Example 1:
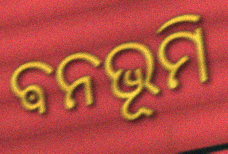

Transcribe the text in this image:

ଵନଭୂମି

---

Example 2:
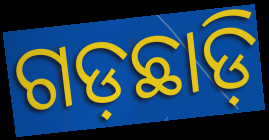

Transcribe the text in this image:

ଗଡ଼ଛାଡ଼ି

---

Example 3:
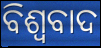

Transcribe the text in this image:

ବିଶ୍ୱବାଦ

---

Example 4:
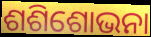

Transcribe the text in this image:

ଶଶିଶୋଭନା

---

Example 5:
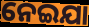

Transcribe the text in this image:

ନେଇଯା